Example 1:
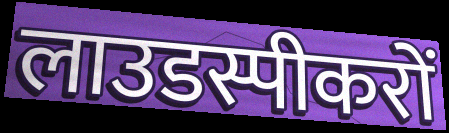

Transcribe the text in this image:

लाउडस्पीकरों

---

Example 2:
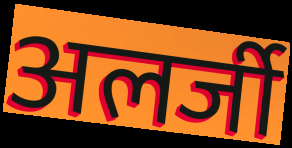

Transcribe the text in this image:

अलर्जी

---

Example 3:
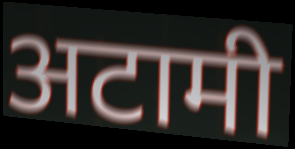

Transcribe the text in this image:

अटामी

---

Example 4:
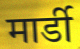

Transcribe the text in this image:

मार्डी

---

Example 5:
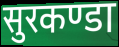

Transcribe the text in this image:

सुरकण्डा